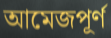
আমেজপূর্ণ